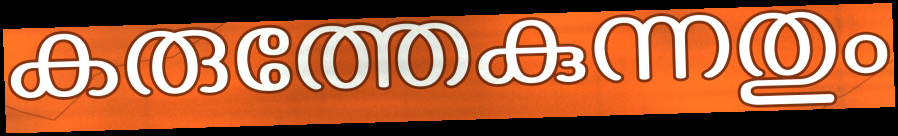
കരുത്തേകുന്നതും